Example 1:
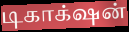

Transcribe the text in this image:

டிகாக்‌ஷன்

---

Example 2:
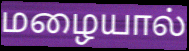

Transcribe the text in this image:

மழையால்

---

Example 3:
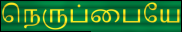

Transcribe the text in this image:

நெருப்பையே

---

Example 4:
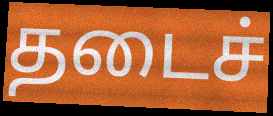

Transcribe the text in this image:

தடைச்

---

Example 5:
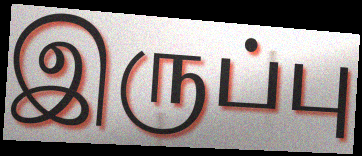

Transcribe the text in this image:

இருப்பு